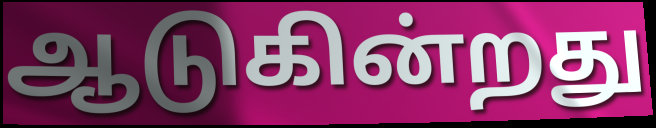
ஆடுகின்றது